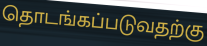
தொடங்கப்படுவதற்கு